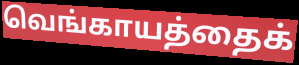
வெங்காயத்தைக்